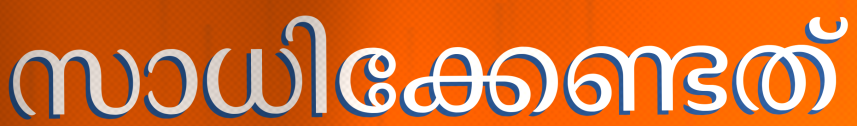
സാധിക്കേണ്ടത്